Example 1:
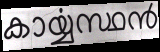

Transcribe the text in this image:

കാൎയ്യസ്ഥൻ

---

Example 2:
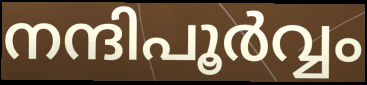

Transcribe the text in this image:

നന്ദിപൂർവ്വം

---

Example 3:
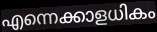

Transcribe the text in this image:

എന്നെക്കാളധികം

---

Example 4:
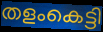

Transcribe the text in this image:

തളംകെട്ടി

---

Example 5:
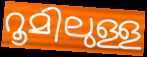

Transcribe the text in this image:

റൂമിലുള്ള